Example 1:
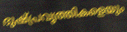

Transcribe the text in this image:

ദുഷ്പ്രവൃത്തികളെയും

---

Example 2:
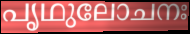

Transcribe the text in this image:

പൃഥുലോചനഃ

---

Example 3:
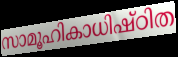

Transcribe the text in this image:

സാമൂഹികാധിഷ്ഠിത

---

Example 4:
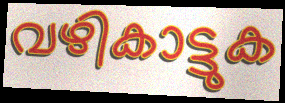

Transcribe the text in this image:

വഴികാട്ടുക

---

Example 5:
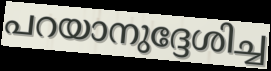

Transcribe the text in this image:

പറയാനുദ്ദേശിച്ച